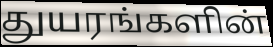
துயரங்களின்